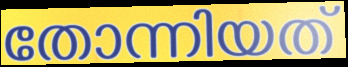
തോന്നിയത്